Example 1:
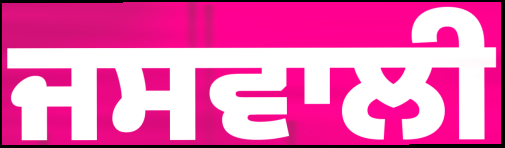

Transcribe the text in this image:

ਜਸਵਾਲੀ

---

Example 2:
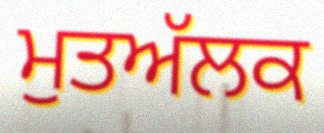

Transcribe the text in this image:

ਮੁਤਅੱਲਕ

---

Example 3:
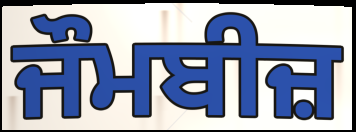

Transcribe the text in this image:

ਜੌਮਬੀਜ਼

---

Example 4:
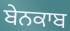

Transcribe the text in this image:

ਬੇਨਕਾਬ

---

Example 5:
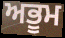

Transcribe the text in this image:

ਅਭੂਮ